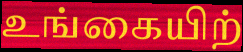
உங்கையிற்